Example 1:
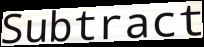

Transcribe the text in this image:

Subtract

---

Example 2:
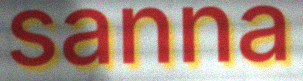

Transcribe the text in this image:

sanna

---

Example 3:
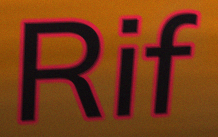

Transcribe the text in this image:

Rif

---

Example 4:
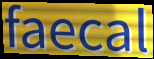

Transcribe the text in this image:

faecal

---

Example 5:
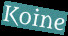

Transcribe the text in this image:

Koine